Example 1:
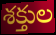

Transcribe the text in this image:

శక్తుల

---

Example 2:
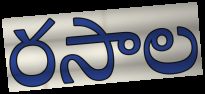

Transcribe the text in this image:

రసాల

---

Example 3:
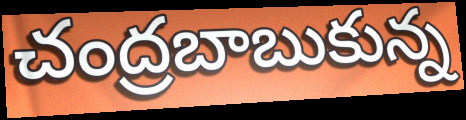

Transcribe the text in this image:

చంద్రబాబుకున్న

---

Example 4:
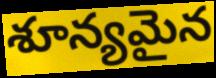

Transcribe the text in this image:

శూన్యమైన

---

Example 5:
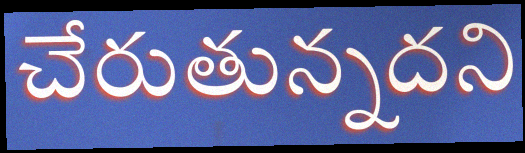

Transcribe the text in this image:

చేరుతున్నదని